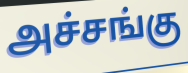
அச்சங்கு